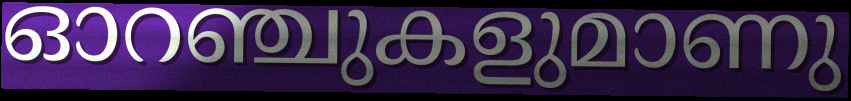
ഓറഞ്ചുകളുമാണു